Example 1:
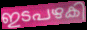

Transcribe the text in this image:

ഇടപഴകി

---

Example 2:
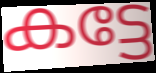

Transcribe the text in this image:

കട്ടേ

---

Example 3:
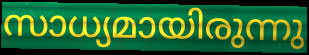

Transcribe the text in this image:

സാധ്യമായിരുന്നു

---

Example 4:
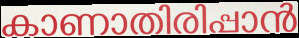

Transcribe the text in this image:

കാണാതിരിപ്പാൻ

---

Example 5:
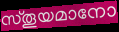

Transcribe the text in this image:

സ്തൂയമാനോ